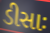
ડીસાઃ